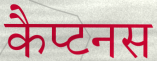
कैप्टनस